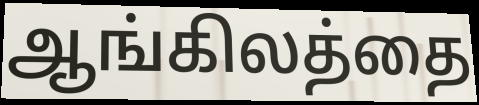
ஆங்கிலத்தை